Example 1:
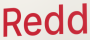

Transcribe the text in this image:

Redd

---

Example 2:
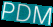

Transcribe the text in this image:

PDM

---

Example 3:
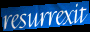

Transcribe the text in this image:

resurrexit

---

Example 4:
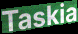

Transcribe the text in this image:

Taskia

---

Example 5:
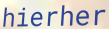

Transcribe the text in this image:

hierher